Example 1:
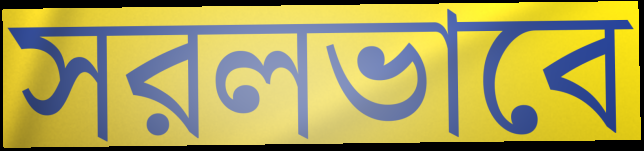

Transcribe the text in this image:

সরলভাবে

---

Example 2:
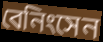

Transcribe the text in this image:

বেনিংসেন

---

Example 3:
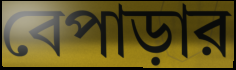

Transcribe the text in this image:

বেপাড়ার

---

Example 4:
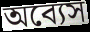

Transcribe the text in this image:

অব্যেস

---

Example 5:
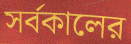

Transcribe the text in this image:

সর্বকালের